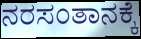
ನರಸಂತಾನಕ್ಕೆ